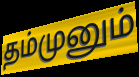
தம்முனும்